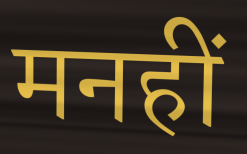
मनहीं